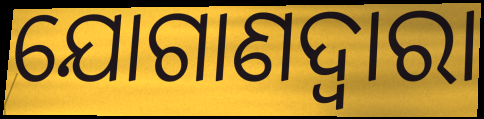
ଯୋଗାଣଦ୍ଵାରା